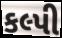
કલ્પી